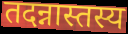
तदन्नास्तस्य